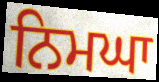
ਨਿਮਘਾ